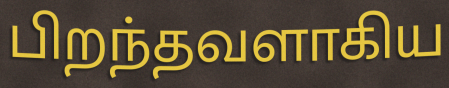
பிறந்தவளாகிய